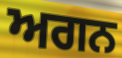
ਅਗਨ